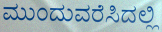
ಮುಂದುವರೆಸಿದಲ್ಲಿ